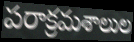
పరాక్రమశాలుల